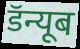
डॅन्यूब